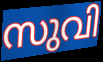
സുവി